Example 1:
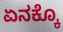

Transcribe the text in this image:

ಏನಕ್ಕೊ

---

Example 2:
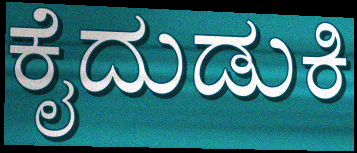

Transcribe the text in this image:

ಕೈದುಡುಕಿ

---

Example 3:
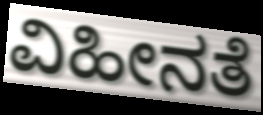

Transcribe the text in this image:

ವಿಹೀನತೆ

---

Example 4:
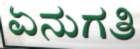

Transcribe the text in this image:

ಏನುಗತಿ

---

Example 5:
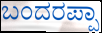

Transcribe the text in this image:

ಬಂದರಪ್ಪಾ